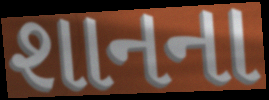
શાનના